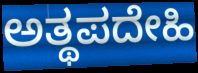
ಅತ್ಥಪದೇಹಿ